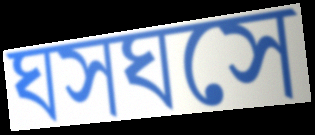
ঘসঘসে